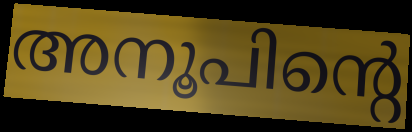
അനൂപിന്റെ